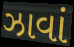
ઝાવાં